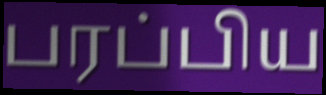
பரப்பிய